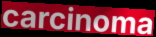
carcinoma